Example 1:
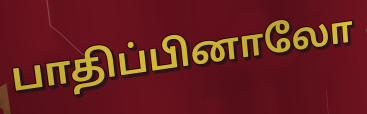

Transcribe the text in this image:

பாதிப்பினாலோ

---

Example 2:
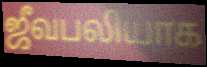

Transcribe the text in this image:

ஜீவபலியாக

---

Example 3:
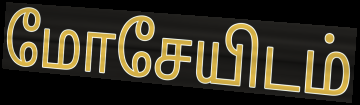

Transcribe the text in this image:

மோசேயிடம்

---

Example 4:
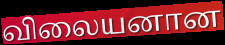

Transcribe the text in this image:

விலையனான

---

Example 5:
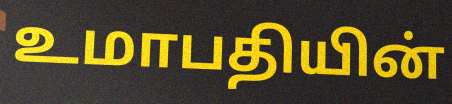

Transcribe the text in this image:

உமாபதியின்